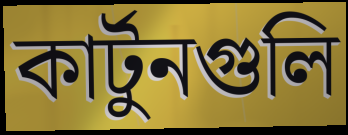
কার্টুনগুলি